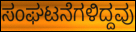
ಸಂಘಟನೆಗಳಿದ್ದವು